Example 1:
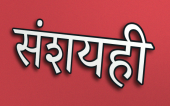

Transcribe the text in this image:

संशयही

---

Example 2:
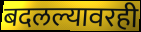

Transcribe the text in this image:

बदलल्यावरही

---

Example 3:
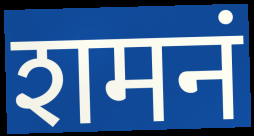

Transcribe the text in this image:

शमनं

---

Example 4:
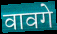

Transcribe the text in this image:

वावगे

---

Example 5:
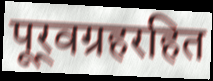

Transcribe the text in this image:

पूर्वग्रहरहित